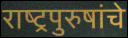
राष्ट्रपुरुषांचे